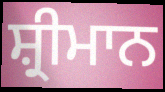
ਸ਼੍ਰੀਮਾਨ